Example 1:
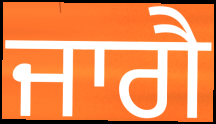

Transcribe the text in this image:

ਜਾਗੈ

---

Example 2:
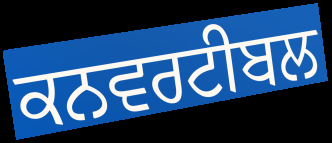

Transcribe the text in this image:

ਕਨਵਰਟੀਬਲ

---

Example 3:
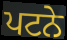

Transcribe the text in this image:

ਪਟਨੇ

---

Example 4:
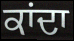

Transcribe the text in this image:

ਕਾਂਦਾ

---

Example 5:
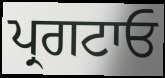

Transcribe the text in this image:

ਪ੍ਰਗਟਾਓ